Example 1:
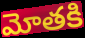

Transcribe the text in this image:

మోతకి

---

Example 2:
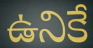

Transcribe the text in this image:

ఉనికే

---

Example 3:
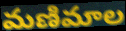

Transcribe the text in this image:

మణిమాల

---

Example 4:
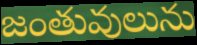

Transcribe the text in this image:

జంతువులును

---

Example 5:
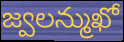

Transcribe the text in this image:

జ్వలన్ముఖో